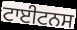
ਟਾਈਟਨਸ